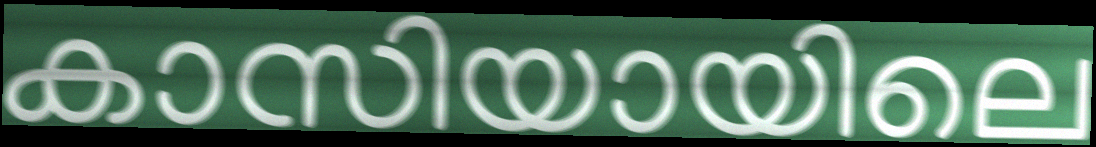
കാസിയായിലെ